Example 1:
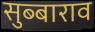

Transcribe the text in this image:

सुब्‍बाराव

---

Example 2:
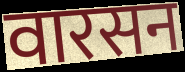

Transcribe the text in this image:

वारसन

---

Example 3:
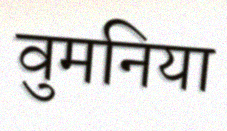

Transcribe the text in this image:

वुमनिया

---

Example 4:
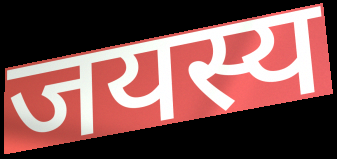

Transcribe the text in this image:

जयस्य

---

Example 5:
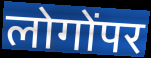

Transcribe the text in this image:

लोगोंपर